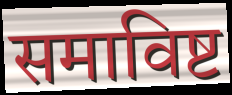
समाविष्ट